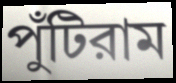
পুঁটিরাম